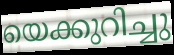
യെക്കുറിച്ചു